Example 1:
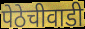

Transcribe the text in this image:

पेठेचीवाडी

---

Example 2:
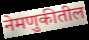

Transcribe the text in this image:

नेमणुकीतील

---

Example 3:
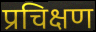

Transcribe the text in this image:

प्रचिक्षण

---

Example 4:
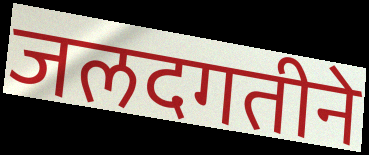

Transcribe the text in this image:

जलदगतीने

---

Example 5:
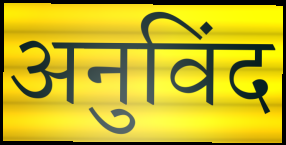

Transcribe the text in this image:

अनुविंद